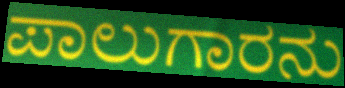
ಪಾಲುಗಾರನು